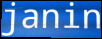
janin